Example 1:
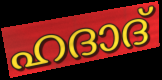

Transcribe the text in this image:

ഹദാദ്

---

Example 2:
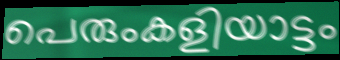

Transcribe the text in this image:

പെരുംകളിയാട്ടം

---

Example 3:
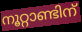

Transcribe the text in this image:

നൂറ്റാണ്ടിന്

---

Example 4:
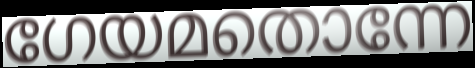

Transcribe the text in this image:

ഗേയമതൊന്നേ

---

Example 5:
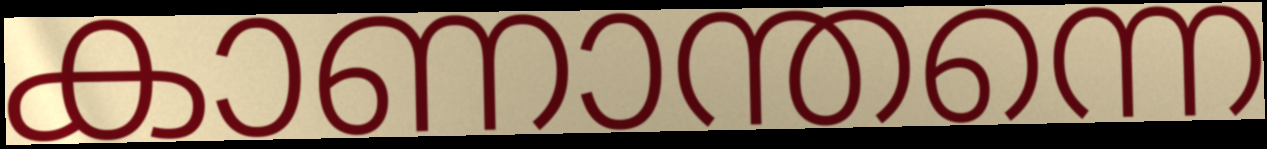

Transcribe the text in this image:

കാണാന്തന്നെ